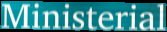
Ministerial